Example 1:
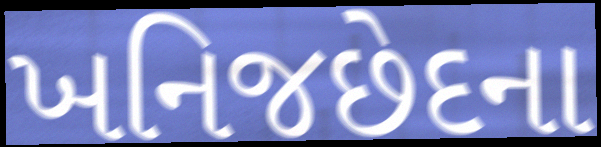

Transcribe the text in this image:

ખનિજછેદના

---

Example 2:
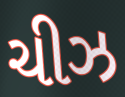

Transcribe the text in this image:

ચીઝ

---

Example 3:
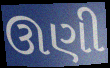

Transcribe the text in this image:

ઊણી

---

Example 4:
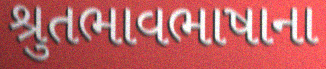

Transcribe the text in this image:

શ્રુતભાવભાષાના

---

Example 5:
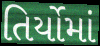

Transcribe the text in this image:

તિર્યોમાં